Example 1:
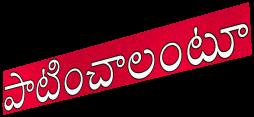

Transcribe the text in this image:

పాటించాలంటూ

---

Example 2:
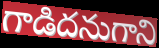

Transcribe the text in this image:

గాడిదనుగాని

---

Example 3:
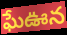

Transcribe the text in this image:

ఘేఊన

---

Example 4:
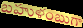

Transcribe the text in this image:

బహుళంబుగా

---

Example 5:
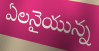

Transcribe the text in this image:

ఏలనైయున్న